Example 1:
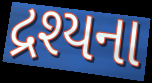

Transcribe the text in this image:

દ્રશ્યના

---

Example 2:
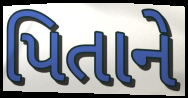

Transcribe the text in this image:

પિતાને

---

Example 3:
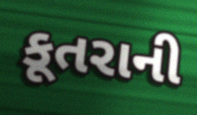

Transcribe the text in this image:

કૂતરાની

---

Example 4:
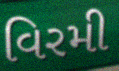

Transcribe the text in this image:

વિરમી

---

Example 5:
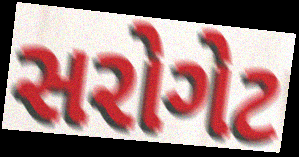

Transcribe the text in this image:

સરોગેટ